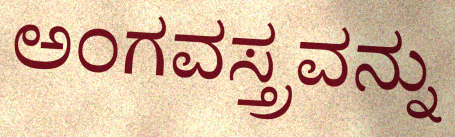
ಅಂಗವಸ್ತ್ರವನ್ನು